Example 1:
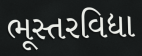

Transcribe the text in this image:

ભૂસ્તરવિદ્યા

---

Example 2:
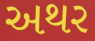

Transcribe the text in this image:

અથર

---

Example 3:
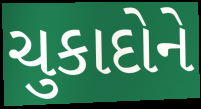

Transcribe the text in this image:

ચુકાદોને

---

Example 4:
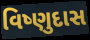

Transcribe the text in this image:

વિષ્ણુદાસ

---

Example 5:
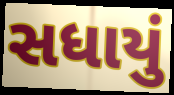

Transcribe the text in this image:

સધાયું